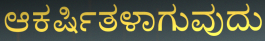
ಆಕರ್ಷಿತಳಾಗುವುದು